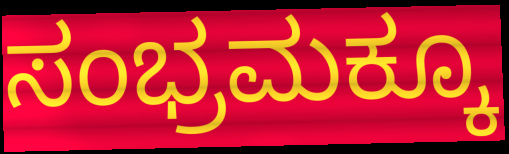
ಸಂಭ್ರಮಕ್ಕೂ